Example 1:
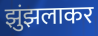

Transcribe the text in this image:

झुंझलाकर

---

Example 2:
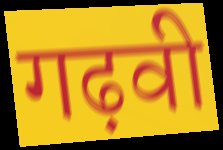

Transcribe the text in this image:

गढ़वी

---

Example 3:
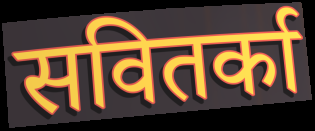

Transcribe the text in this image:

सवितर्का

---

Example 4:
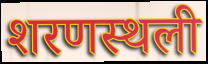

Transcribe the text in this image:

शरणस्थली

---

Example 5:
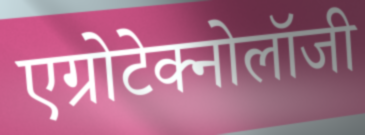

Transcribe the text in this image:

एग्रोटेक्नोलॉजी